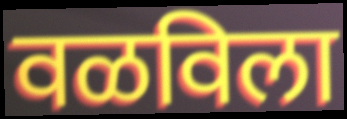
वळविला